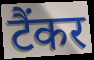
टैंकर